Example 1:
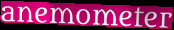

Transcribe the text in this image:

anemometer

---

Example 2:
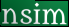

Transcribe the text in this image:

nsim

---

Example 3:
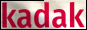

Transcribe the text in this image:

kadak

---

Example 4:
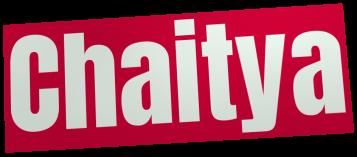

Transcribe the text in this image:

Chaitya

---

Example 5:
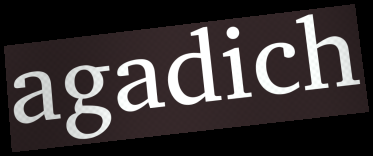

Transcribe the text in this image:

agadich